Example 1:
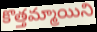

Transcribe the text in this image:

కొత్తమ్మాయిని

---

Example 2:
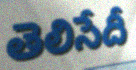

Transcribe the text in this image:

తెలిసేదీ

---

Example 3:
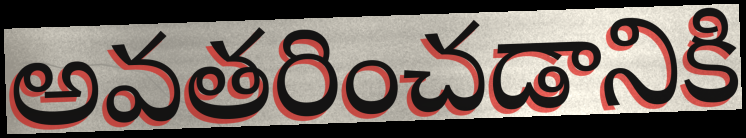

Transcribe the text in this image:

అవతరించడానికి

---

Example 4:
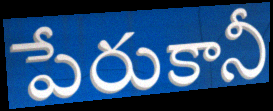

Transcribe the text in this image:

పేరుకానీ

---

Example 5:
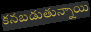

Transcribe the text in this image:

కనబడుతున్నాయి